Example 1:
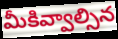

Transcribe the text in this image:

మీకివ్వాల్సిన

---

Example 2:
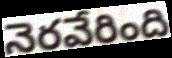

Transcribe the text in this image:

నెరవేరింది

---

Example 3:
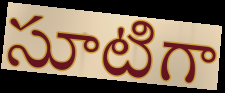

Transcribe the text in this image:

సూటిగా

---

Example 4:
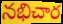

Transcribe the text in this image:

నభిచార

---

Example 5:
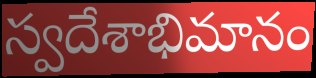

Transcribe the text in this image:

స్వదేశాభిమానం